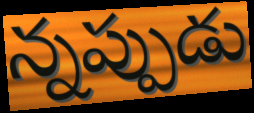
న్నప్పుడు